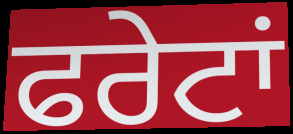
ਫਰੇਟਾਂ